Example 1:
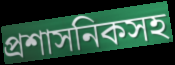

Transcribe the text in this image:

প্রশাসনিকসহ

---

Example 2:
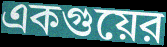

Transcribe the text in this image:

একগুয়ের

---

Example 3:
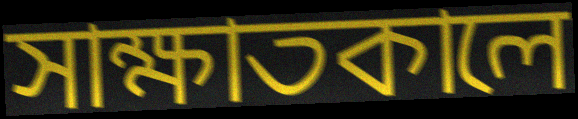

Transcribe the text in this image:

সাক্ষাতকালে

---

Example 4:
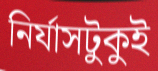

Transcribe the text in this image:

নির্যাসটুকুই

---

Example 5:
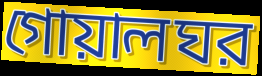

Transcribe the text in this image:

গোয়ালঘর